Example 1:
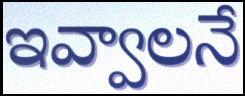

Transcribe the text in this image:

ఇవ్వాలనే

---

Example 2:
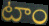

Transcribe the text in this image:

టాం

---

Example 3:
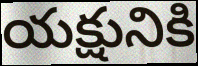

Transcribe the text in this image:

యక్షునికి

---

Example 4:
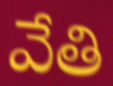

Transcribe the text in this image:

వేతి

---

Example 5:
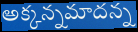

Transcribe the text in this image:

అక్కన్నమాదన్న